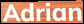
Adrian